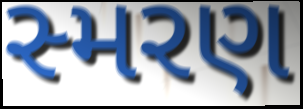
સ્મરણ